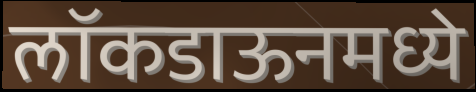
लॉकडाऊनमध्ये